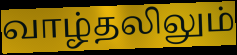
வாழ்தலிலும்